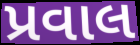
પ્રવાલ